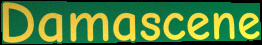
Damascene